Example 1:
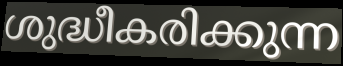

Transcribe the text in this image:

ശുദ്ധീകരിക്കുന്ന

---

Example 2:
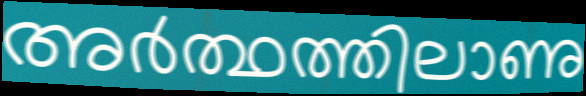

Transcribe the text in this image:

അർത്ഥത്തിലാണു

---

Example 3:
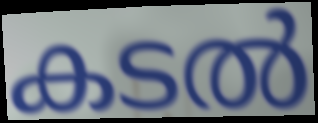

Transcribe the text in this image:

കടൽ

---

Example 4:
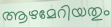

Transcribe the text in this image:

ആഴമേറിയതും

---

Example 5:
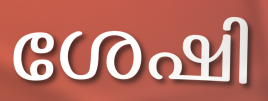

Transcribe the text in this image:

ശേഷി